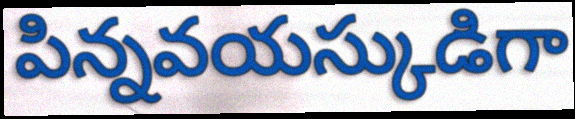
పిన్నవయస్కుడిగా